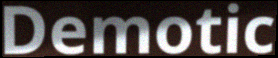
Demotic